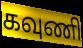
கவுணி